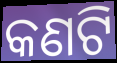
କଣଟି